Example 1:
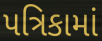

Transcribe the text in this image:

પત્રિકામાં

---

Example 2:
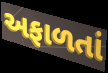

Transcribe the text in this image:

અફાળતાં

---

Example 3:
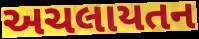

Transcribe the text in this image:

અચલાયતન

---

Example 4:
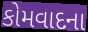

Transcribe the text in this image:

કોમવાદના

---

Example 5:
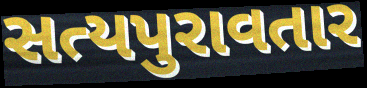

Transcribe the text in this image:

સત્યપુરાવતાર